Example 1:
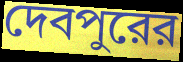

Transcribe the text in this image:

দেবপুরের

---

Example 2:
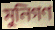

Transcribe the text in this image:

মুনিগণ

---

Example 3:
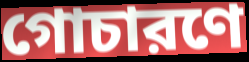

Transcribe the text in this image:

গোচারণে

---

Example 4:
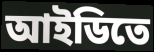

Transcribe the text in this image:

আইডিতে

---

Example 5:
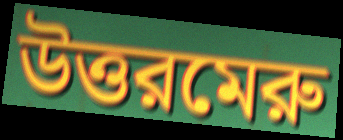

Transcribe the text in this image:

উত্তরমেরু